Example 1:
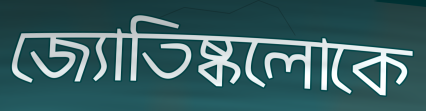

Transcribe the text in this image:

জ্যোতিষ্কলোকে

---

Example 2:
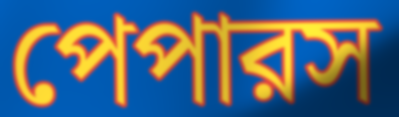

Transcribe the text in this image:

পেপারস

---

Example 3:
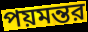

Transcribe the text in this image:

পয়মন্তর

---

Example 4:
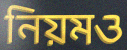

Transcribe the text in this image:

নিয়মও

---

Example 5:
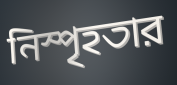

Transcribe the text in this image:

নিস্পৃহতার